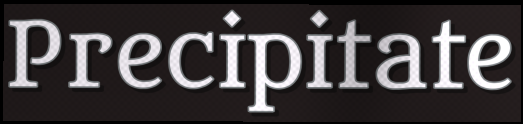
Precipitate